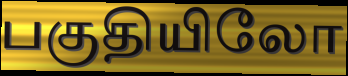
பகுதியிலோ